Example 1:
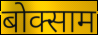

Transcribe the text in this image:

बोक्साम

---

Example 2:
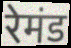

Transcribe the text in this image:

रेमंड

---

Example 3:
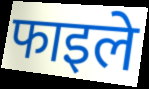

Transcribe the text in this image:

फाइले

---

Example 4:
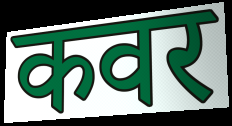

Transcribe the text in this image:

कवर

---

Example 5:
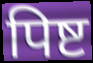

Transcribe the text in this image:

पिष्ट